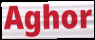
Aghor